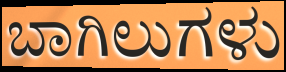
ಬಾಗಿಲುಗಳು